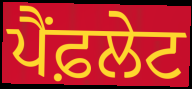
ਪੈਂਫ਼ਲੇਟ